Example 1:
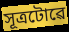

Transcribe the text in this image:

সূত্ৰটোৱে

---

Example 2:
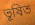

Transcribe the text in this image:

ভূষিত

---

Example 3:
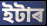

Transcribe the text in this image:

ইটাৰ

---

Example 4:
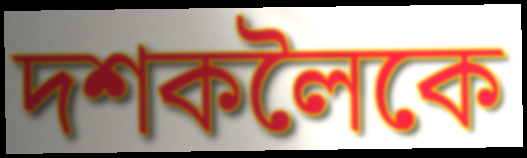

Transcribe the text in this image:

দশকলৈকে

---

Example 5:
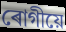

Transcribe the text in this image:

ৰোগীয়ে